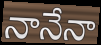
నానేనా